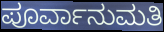
ಪೂರ್ವಾನುಮತಿ